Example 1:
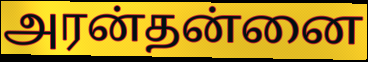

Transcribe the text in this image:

அரன்தன்னை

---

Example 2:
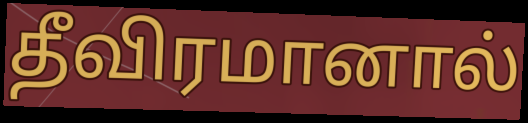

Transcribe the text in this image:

தீவிரமானால்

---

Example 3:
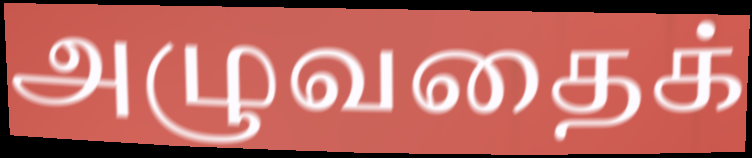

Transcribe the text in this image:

அழுவதைக்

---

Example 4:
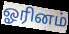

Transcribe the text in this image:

ஓரினம்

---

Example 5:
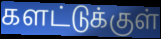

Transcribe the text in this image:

களட்டுக்குள்